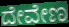
ದೇವೇಣ